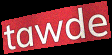
tawde